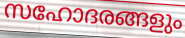
സഹോദരങ്ങളും